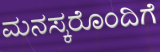
ಮನಸ್ಕರೊಂದಿಗೆ